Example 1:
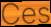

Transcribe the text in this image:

Ces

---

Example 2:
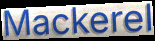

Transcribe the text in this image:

Mackerel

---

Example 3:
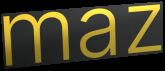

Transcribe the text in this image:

maz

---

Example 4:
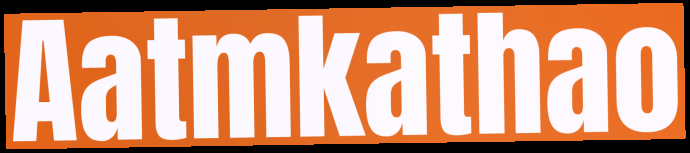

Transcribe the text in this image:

Aatmkathao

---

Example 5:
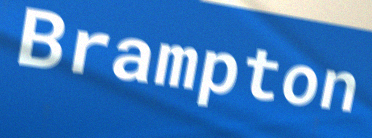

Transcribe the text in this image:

Brampton